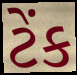
ટેંક